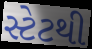
સ્ટેટથી